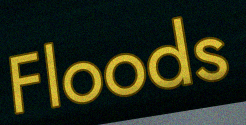
Floods